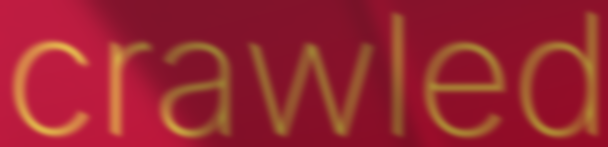
crawled